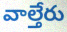
వాల్తేరు